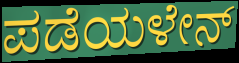
ಪಡೆಯಳೇನ್